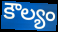
కౌల్యం